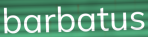
barbatus